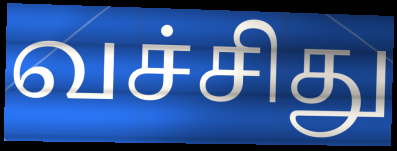
வச்சிது